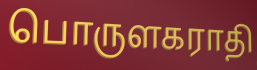
பொருளகராதி